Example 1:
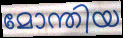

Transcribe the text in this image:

മോന്തിയ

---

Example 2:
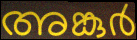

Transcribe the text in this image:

അങ്കുർ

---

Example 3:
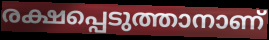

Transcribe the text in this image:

രക്ഷപ്പെടുത്താനാണ്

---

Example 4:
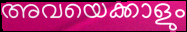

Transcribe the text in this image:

അവയെക്കാളും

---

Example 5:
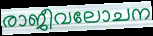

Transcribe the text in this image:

രാജീവലോചന